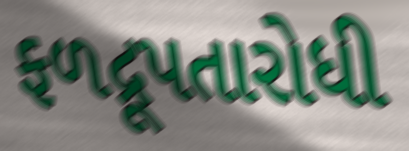
ફળદ્રૂપતારોધી